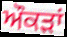
ਔਕਡ਼ਾਂ